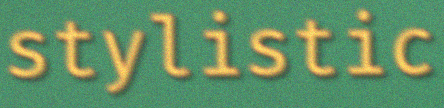
stylistic